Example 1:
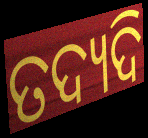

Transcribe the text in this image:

ତଦ୍ୟଦି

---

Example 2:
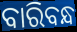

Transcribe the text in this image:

ବାରିବନ୍ଧ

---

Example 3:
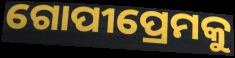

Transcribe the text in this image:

ଗୋପୀପ୍ରେମକୁ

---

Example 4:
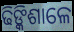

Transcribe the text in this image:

ଢିଙ୍କିଶାଳେ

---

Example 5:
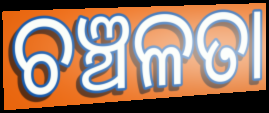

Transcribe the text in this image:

ଚଞ୍ଚଳତା